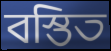
বস্তিত